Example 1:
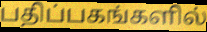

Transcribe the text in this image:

பதிப்பகங்களில்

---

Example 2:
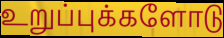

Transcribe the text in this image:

உறுப்புக்களோடு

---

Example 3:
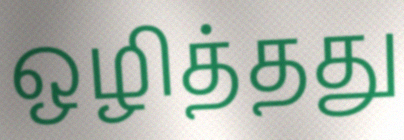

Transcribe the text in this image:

ஒழித்தது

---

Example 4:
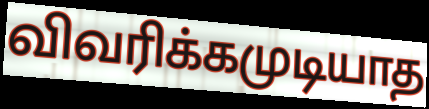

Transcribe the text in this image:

விவரிக்கமுடியாத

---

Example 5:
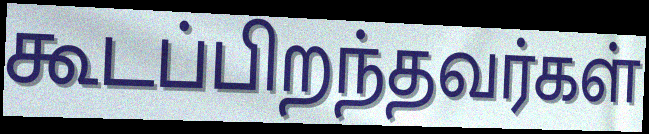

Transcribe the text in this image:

கூடப்பிறந்தவர்கள்